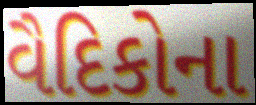
વૈદિકોના